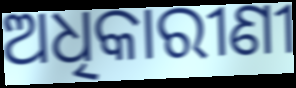
ଅଧିକାରୀଣୀ